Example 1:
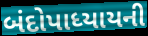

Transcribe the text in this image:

બંદોપાધ્યાયની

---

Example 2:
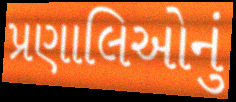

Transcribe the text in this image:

પ્રણાલિઓનું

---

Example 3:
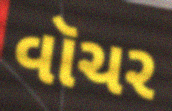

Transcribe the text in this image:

વૉચર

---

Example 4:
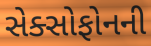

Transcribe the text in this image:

સેક્સોફોનની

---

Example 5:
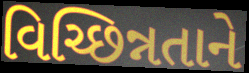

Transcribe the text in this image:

વિચ્છિન્નતાને